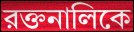
রক্তনালিকে